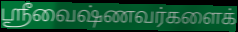
ஸ்ரீவைஷ்ணவர்களைக்